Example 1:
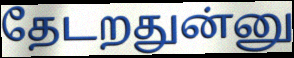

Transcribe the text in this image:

தேடறதுன்னு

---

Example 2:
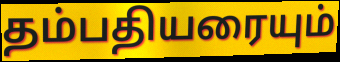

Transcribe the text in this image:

தம்பதியரையும்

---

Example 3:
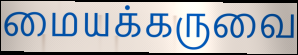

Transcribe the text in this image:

மையக்கருவை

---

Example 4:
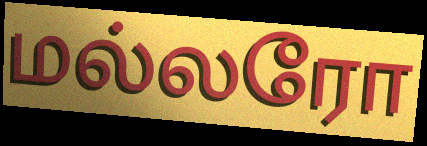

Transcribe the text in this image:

மல்லரோ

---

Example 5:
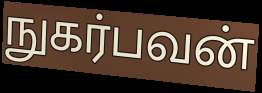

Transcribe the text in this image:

நுகர்பவன்